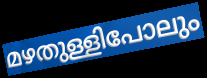
മഴതുള്ളിപോലും